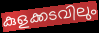
കുളക്കടവിലും